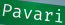
Pavari